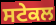
ਸਟੇਕਲ